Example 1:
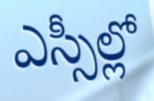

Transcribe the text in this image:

ఎస్సీల్లో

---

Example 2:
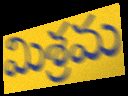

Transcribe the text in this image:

మిశ్రమ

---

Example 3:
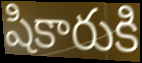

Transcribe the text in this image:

షికారుకి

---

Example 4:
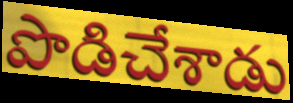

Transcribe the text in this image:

పొడిచేశాడు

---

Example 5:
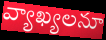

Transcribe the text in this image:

వ్యాఖ్యలనూ